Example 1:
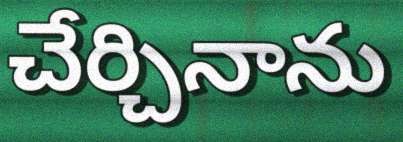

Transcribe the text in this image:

చేర్చినాను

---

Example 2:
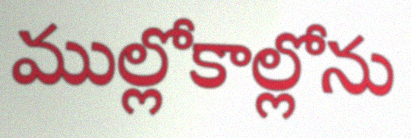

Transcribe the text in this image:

ముల్లోకాల్లోను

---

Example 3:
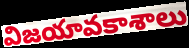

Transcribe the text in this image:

విజయావకాశాలు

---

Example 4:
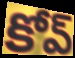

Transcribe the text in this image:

కోవ్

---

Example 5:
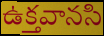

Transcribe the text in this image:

ఉక్తవానసి